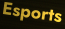
Esports